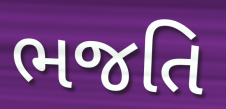
ભજતિ